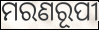
ମରଣରୂପୀ